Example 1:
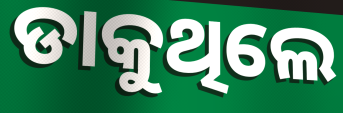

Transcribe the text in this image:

ଡାକୁଥିଲେ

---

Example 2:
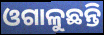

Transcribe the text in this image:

ଓଗାଳୁଛନ୍ତି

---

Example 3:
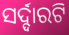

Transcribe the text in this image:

ସର୍ଦ୍ଦାରଟି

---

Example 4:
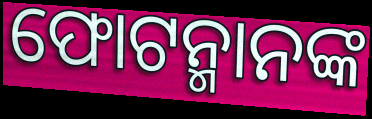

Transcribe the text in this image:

ଫୋଟନ୍ମାନଙ୍କ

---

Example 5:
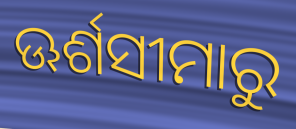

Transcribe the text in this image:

ଊର୍ଶସୀମାରୁ